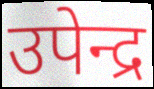
उपेन्द्र